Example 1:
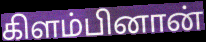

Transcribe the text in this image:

கிளம்பினான்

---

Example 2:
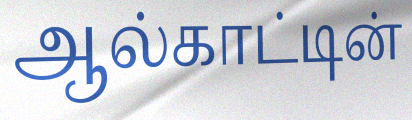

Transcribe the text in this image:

ஆல்காட்டின்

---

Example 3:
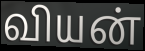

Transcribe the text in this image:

வியன்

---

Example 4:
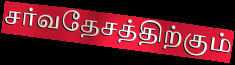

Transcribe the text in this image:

சர்வதேசத்திற்கும்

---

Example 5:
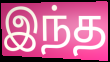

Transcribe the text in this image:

இந்த